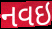
નવઇ